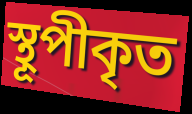
স্থূপীকৃত